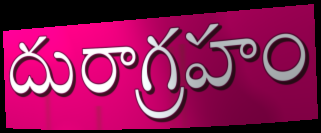
దురాగ్రహం